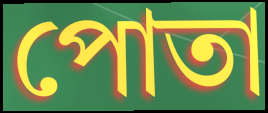
পোতা